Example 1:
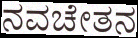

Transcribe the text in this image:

ನವಚೇತನ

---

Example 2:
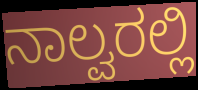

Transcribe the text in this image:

ನಾಲ್ವರಲ್ಲಿ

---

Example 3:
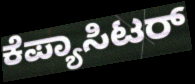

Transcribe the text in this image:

ಕೆಪ್ಯಾಸಿಟರ್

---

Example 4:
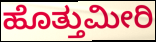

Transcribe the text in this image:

ಹೊತ್ತುಮೀರಿ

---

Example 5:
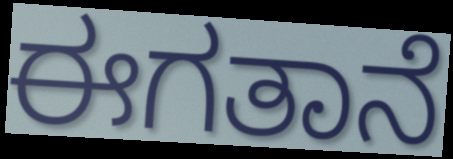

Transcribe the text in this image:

ಈಗತಾನೆ